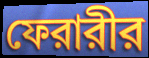
ফেরারীর